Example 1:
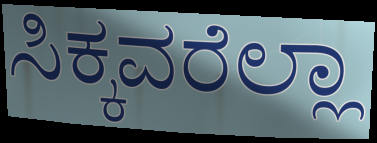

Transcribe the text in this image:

ಸಿಕ್ಕವರೆಲ್ಲಾ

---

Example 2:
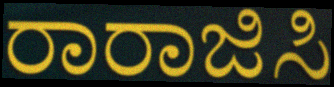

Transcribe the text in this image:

ರಾರಾಜಿಸಿ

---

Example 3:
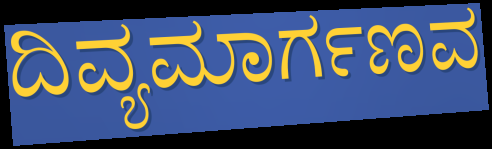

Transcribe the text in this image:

ದಿವ್ಯಮಾರ್ಗಣವ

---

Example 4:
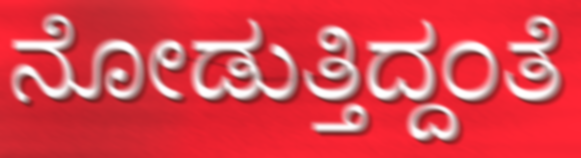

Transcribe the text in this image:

ನೋಡುತ್ತಿದ್ದಂತೆ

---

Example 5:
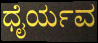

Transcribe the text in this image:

ಧೈರ್ಯವ